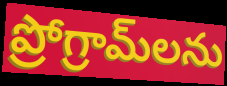
ప్రోగ్రామ్‌లను